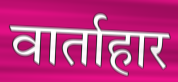
वार्ताहार